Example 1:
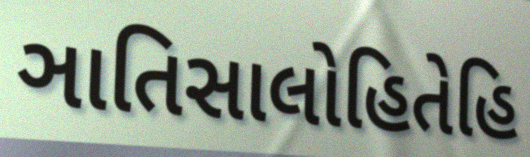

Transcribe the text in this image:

ઞાતિસાલોહિતેહિ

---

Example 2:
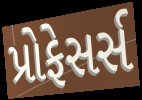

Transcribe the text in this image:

પ્રોફેસર્સ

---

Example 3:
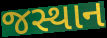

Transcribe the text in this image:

જસ્થાન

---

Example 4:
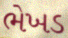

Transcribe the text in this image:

ભેખડ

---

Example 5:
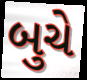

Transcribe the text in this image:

બુચે